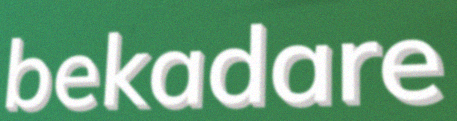
bekadare